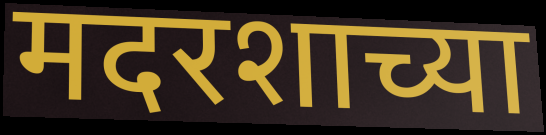
मदरशाच्या